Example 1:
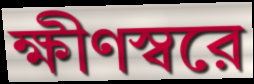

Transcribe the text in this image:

ক্ষীণস্বরে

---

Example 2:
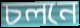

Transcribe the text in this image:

চলনে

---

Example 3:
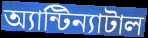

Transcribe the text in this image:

অ্যান্টিন্যাটাল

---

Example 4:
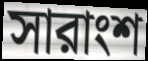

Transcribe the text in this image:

সারাংশ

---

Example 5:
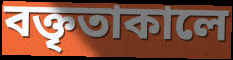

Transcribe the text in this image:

বক্তৃতাকালে